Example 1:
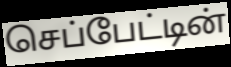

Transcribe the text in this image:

செப்பேட்டின்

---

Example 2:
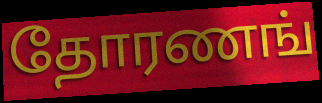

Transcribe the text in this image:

தோரணங்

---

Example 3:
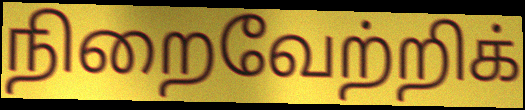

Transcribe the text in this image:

நிறைவேற்றிக்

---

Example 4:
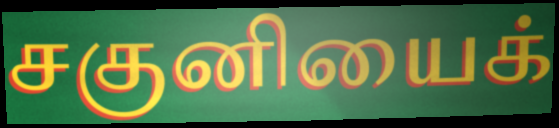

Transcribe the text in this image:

சகுனியைக்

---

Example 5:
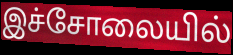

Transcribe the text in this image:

இச்சோலையில்